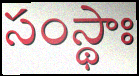
సంస్థాః